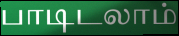
பாடிடலாம்